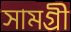
সামগ্ৰী